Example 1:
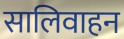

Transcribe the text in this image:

सालिवाहन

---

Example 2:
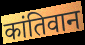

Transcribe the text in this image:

कांतिवान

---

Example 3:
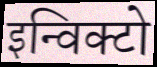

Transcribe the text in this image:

इन्विक्टो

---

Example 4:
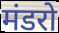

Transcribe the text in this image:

मंडरो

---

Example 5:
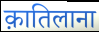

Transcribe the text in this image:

क़ातिलाना